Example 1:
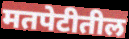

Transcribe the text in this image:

मतपेटीतील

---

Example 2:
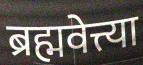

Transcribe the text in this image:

ब्रह्मवेत्त्या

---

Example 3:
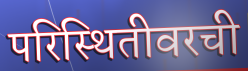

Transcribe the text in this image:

परिस्थितीवरची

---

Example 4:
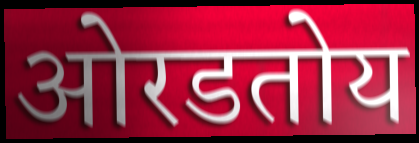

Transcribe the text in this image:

ओरडतोय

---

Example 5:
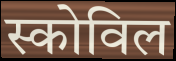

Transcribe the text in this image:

स्कोविल